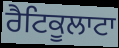
ਰੈਟਿਕੂਲਾਟਾ